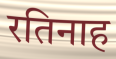
रतिनाह